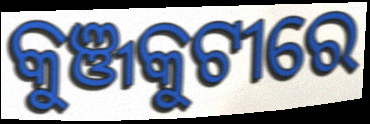
କୁଞ୍ଜକୁଟୀରେ